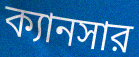
ক্যানসার